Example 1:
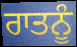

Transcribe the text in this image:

ਰਾਤਨੂੰ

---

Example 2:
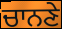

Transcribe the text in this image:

ਚਾਨਣੇ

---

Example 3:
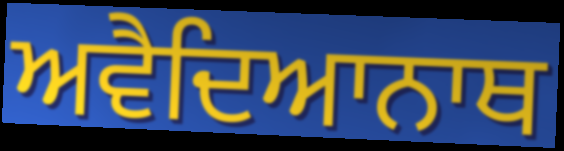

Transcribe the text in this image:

ਅਵੈਦਿਆਨਾਥ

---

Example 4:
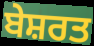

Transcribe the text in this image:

ਬੇਸ਼ਰਤ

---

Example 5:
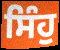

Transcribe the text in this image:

ਸਿੰਹੁ